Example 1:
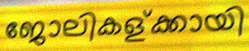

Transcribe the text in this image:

ജോലികള്ക്കായി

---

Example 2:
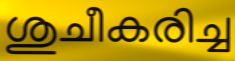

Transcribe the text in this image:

ശുചീകരിച്ച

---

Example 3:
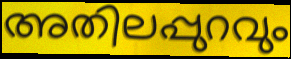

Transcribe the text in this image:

അതിലപ്പുറവും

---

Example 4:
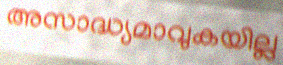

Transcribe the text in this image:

അസാദ്ധ്യമാവുകയില്ല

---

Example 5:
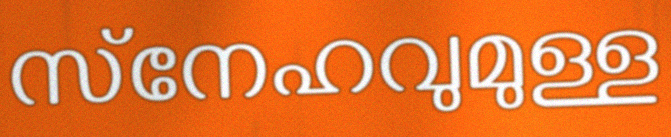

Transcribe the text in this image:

സ്‌നേഹവുമുള്ള